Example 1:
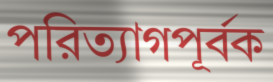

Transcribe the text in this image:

পরিত্যাগপূর্বক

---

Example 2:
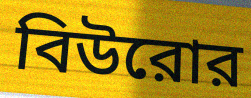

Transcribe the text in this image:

বিউরোর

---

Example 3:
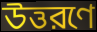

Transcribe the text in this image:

উত্তরণে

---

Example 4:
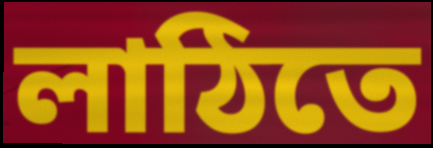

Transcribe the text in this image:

লাঠিতে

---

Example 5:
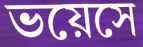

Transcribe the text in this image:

ভয়েসে